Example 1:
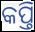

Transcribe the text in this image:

କପ୍ତି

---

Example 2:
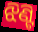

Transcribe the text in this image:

ଝିଣ୍ଟି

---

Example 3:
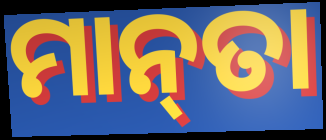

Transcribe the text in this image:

ମାନ୍‌ତା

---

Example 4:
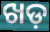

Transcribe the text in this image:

ଖଡ଼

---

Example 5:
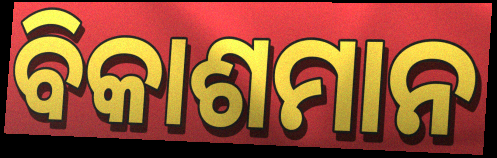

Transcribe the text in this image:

ବିକାଶମାନ